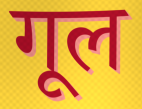
गूल